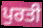
ਪੁਰਤੀ